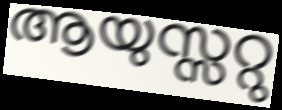
ആയുസ്സറ്റു